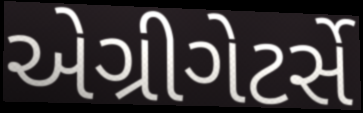
એગ્રીગેટર્સે